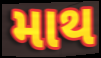
માથ